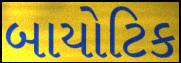
બાયોટિક